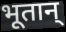
भूतान्